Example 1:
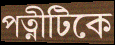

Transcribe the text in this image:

পত্নীটিকে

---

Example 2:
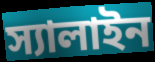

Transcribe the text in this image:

স্যালাইন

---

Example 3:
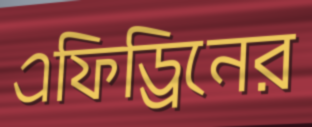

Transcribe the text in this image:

এফিড্রিনের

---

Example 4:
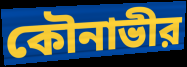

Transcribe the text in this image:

কৌনাভীর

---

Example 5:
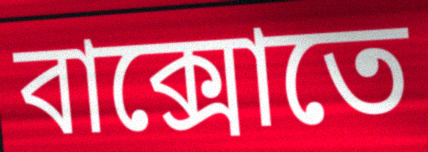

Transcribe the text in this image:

বাক্সোতে